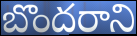
బొందరాని